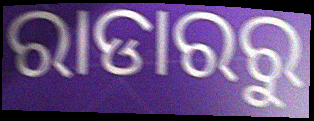
ରାଡାରରୁ